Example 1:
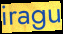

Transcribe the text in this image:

iragu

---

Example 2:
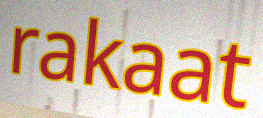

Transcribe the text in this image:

rakaat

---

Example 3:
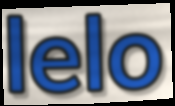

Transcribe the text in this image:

lelo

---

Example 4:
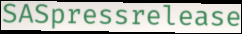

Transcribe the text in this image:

SASpressrelease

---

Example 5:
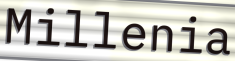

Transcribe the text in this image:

Millenia